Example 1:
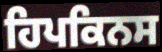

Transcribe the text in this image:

ਹਿਪਕਿਨਸ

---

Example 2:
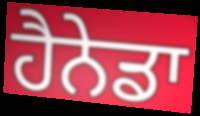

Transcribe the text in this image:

ਹੈਨੇਡਾ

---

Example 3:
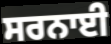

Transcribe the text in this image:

ਸਰਨਾਈ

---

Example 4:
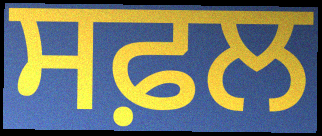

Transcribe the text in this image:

ਸਫ਼ਲ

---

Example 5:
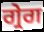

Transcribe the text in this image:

ਗ੍ਰੇਗ